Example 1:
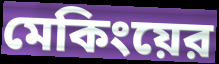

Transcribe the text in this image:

মেকিংয়ের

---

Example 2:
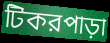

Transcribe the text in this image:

টিকরপাড়া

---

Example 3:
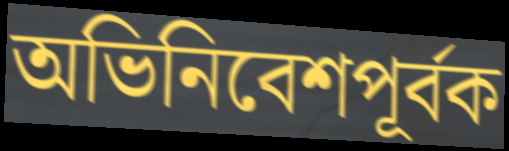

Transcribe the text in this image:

অভিনিবেশপূর্বক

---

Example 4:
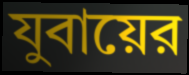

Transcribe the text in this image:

যুবায়ের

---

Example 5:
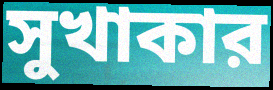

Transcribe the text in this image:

সুখাকার